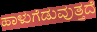
ಹಾಳುಗೆಡುವುತ್ತದೆ